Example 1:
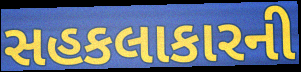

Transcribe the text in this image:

સહકલાકારની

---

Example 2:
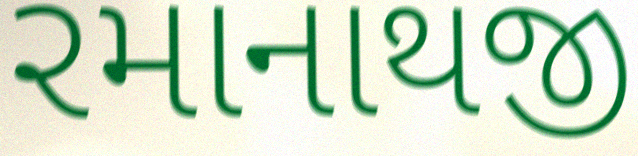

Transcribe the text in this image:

રમાનાથજી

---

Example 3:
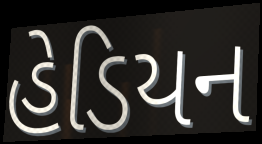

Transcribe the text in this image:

હેડિયન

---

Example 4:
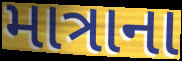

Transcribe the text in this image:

માત્રાના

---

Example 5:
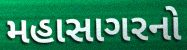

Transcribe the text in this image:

મહાસાગરનો